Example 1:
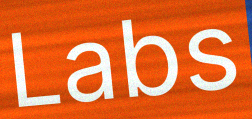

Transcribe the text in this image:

Labs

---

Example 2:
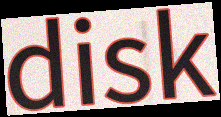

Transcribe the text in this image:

disk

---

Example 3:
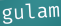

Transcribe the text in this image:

gulam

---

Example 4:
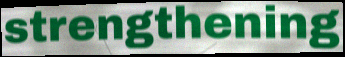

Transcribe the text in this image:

strengthening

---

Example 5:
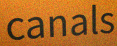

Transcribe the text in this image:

canals